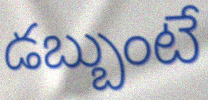
డబ్బుంటే